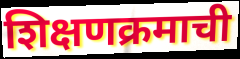
शिक्षणक्रमाची